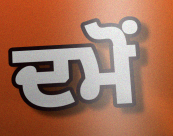
ਦਮੋਂ